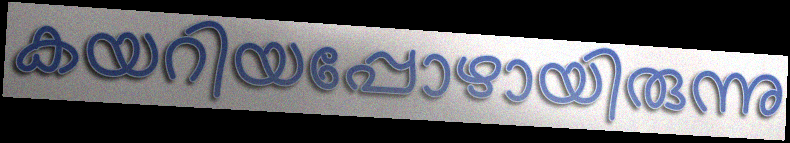
കയറിയപ്പോഴായിരുന്നു